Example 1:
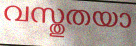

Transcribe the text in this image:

വസ്തുതയാ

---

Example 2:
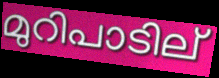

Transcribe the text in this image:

മുറിപാടില്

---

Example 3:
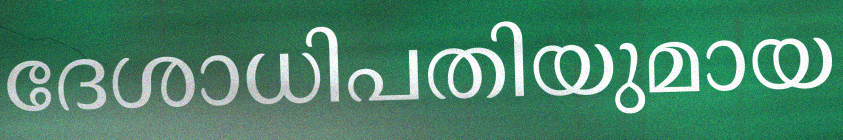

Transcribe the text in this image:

ദേശാധിപതിയുമായ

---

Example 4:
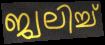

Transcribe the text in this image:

ജ്വലിച്ച്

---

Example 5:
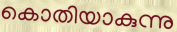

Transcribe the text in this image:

കൊതിയാകുന്നു